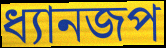
ধ্যানজপ